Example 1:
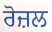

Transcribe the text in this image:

ਰੋਜ਼ਲ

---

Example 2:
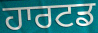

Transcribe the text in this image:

ਹਾਰਟਡ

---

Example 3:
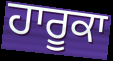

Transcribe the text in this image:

ਹਾਰੂਕਾ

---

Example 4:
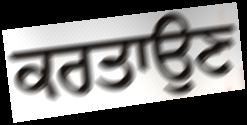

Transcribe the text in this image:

ਕਰਤਾਉਣ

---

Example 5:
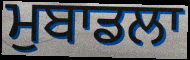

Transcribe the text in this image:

ਮੁਬਾਡਲਾ